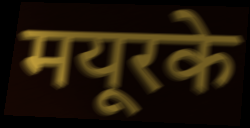
मयूरके